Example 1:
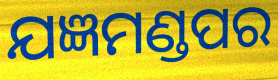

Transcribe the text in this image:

ଯଜ୍ଞମଣ୍ଡପର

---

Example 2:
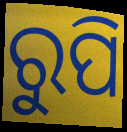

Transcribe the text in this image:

ରୁପି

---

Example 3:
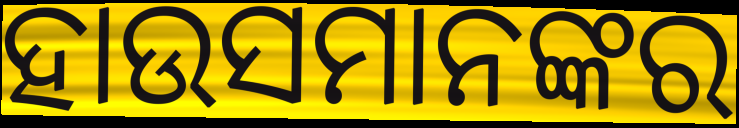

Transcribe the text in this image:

ହାଉସମାନଙ୍କର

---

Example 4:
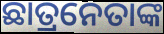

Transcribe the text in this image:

ଛାତ୍ରନେତାଙ୍କ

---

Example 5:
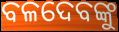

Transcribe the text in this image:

ବଳଦେବଙ୍କୁ